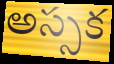
అస్సక